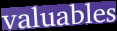
valuables